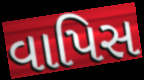
વાપિસ